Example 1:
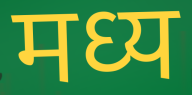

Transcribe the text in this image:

मध्‍य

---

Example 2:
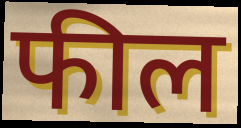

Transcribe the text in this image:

फील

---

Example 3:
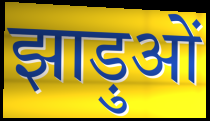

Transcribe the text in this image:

झाड़ुओं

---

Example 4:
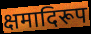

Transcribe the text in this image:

क्षमादिरूप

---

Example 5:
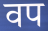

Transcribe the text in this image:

वप